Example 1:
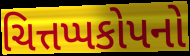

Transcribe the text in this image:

ચિત્તપ્પકોપનો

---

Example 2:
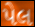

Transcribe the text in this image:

પેલ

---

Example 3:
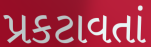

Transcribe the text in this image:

પ્રકટાવતાં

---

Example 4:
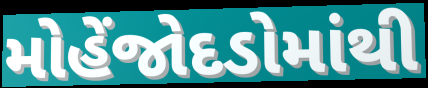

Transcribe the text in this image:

મોહેંજોદડોમાંથી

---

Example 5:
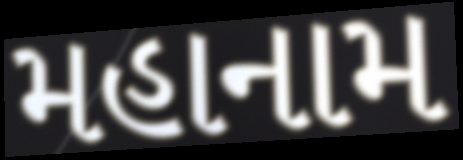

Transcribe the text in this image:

મહાનામ